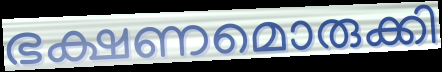
ഭക്ഷണമൊരുക്കി